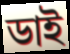
ডাই